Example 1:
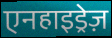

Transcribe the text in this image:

एनहाइड्रेज़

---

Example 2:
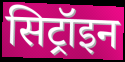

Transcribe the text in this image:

सिट्रॉइन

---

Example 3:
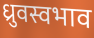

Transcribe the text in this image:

ध्रुवस्वभाव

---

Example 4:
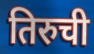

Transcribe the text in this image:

तिरुची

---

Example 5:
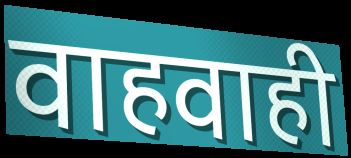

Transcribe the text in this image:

वाहवाही